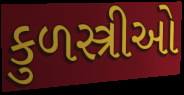
કુળસ્ત્રીઓ